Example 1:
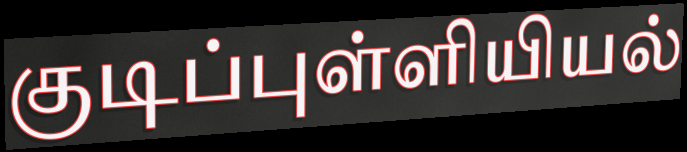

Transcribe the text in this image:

குடிப்புள்ளியியல்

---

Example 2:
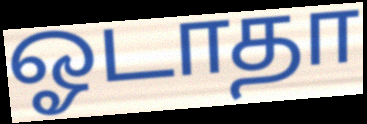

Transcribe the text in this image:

ஓடாதா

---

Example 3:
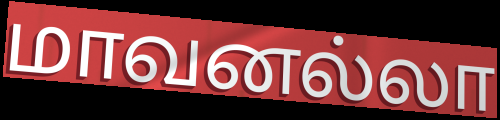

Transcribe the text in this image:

மாவனல்லா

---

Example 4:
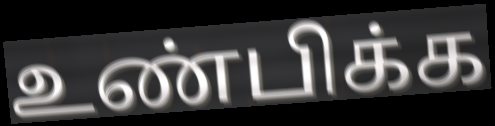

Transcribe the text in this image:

உண்பிக்க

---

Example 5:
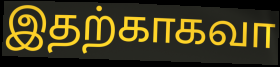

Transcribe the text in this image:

இதற்காகவா